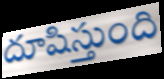
దూషిస్తుంది